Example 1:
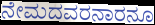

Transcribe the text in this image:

ನೇಮದವರನಾರನೂ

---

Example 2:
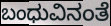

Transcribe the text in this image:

ಬಂಧುವಿನಂತೆ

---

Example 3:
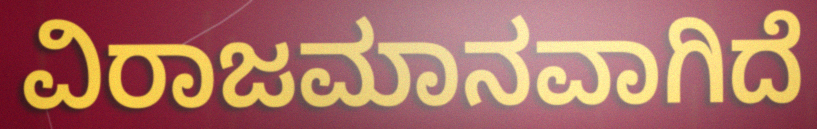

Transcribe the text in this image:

ವಿರಾಜಮಾನವಾಗಿದೆ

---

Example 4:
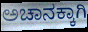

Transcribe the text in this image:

ಅಚಾನಕ್ಕಾಗಿ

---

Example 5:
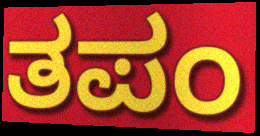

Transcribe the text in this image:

ತಪಂ